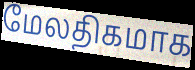
மேலதிகமாக